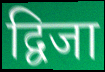
द्विजा